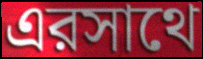
এরসাথে